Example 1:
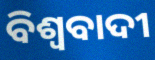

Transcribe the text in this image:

ବିଶ୍ବବାଦୀ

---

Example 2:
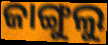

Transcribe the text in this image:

ଜାଙ୍ଗୁଲୁ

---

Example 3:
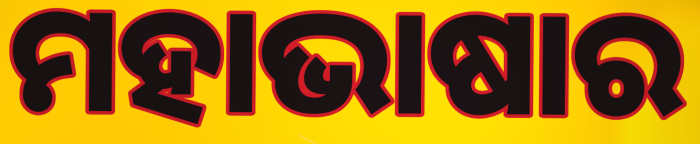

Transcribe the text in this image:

ମହାଭାଷାର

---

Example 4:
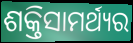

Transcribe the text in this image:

ଶକ୍ତିସାମର୍ଥ୍ୟର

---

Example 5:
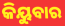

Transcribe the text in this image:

କିୟୁବାର